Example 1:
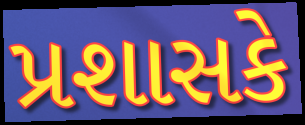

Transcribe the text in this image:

પ્રશાસકે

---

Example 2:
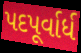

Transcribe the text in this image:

પદપૂર્વાર્ધ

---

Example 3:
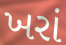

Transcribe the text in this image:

ખરાં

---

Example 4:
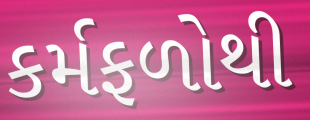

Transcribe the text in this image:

કર્મફળોથી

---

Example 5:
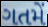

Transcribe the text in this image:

ગતમેં